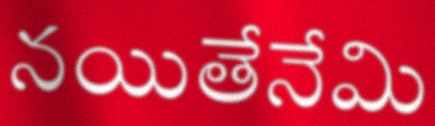
నయితేనేమి